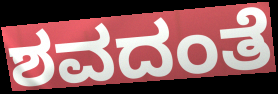
ಶವದಂತೆ